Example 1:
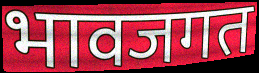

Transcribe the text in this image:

भावजगत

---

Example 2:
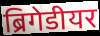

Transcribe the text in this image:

ब्रिगेडीयर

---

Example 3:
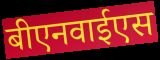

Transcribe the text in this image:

बीएनवाईएस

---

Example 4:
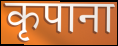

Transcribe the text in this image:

कृपाना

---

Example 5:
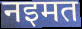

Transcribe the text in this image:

नइमत